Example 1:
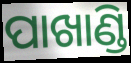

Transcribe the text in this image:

ପାଖାଣ୍ଡି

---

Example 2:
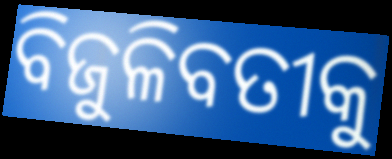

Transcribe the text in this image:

ବିଜୁଳିବତୀକୁ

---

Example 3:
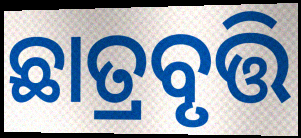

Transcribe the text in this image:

ଛାତ୍ରବୃତ୍ତି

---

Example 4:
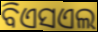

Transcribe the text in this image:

ବିଏସଏଲ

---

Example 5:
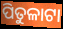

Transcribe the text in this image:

ପିତୁଳାଟା